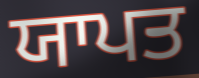
ਯਾਪਤ